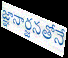
జ్ఞానార్జనతోనే